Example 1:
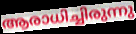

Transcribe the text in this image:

ആരാധിച്ചിരുന്നു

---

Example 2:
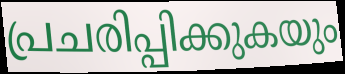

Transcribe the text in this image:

പ്രചരിപ്പിക്കുകയും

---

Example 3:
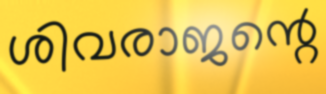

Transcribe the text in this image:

ശിവരാജന്റെ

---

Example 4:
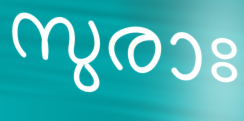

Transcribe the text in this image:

സുരാഃ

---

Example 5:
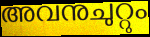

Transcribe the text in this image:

അവനുചുറ്റും